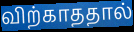
விற்காததால்